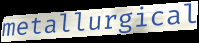
metallurgical